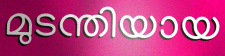
മുടന്തിയായ